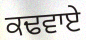
ਕਢਵਾਏ